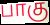
பாகு